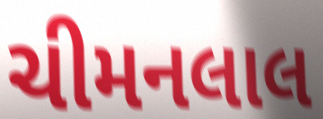
ચીમનલાલ